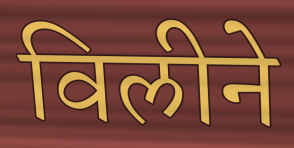
विलीने